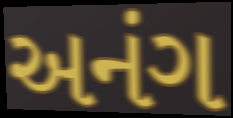
અનંગ